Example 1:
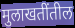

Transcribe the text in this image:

मुलाखतींतील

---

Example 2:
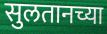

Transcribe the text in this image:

सुलतानच्या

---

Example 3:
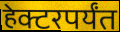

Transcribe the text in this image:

हेक्टरपर्यंत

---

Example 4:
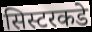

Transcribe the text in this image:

सिस्टरकडे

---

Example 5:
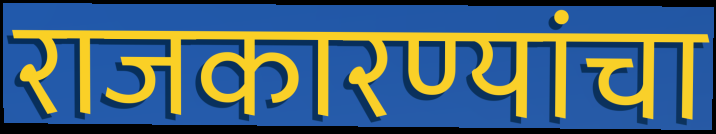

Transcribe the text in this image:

राजकारण्यांचा